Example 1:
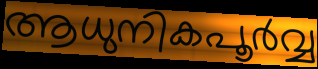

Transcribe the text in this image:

ആധുനികപൂർവ്വ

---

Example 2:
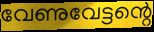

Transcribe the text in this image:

വേണുവേട്ടന്റെ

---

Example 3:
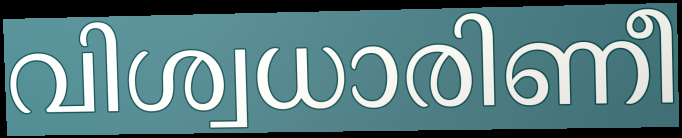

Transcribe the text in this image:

വിശ്വധാരിണീ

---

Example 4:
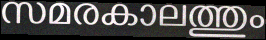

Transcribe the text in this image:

സമരകാലത്തും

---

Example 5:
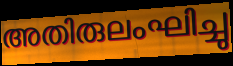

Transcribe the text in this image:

അതിരുലംഘിച്ചു